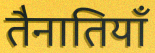
तैनातियाँ